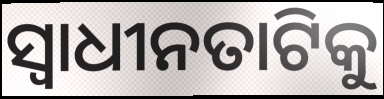
ସ୍ୱାଧୀନତାଟିକୁ